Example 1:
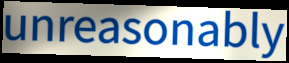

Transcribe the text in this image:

unreasonably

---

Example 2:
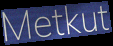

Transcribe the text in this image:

Metkut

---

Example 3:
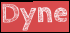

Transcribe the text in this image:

Dyne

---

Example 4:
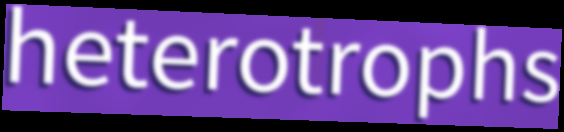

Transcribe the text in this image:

heterotrophs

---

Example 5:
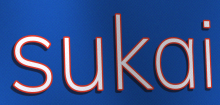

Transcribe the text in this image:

sukai